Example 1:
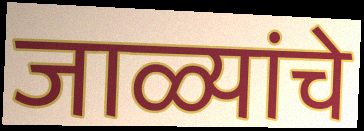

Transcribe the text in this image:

जाळ्यांचे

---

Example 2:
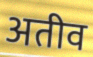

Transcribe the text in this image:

अतीव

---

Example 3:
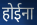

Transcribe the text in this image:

होईना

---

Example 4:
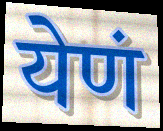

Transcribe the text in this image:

येणं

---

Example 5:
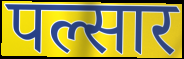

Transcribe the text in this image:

पल्सार